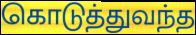
கொடுத்துவந்த